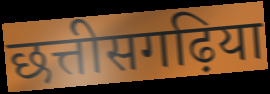
छत्तीसगढ़िया